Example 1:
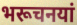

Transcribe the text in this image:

भरूचनयां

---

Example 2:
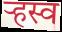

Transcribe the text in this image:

र्‍हस्व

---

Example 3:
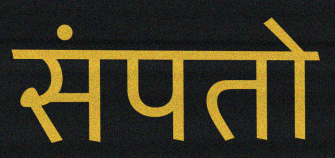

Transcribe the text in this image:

संपतो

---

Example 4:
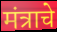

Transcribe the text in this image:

मंत्राचे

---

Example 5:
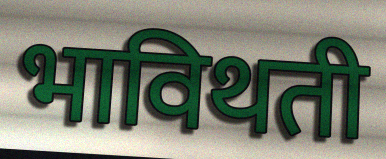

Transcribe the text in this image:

भाविथती